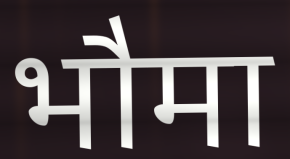
भौमा